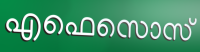
എഫെസൊസ്